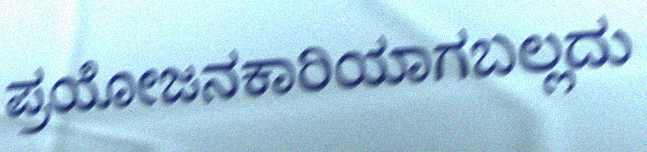
ಪ್ರಯೋಜನಕಾರಿಯಾಗಬಲ್ಲದು